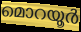
മൊറയൂർ